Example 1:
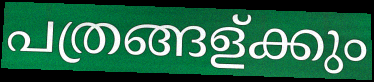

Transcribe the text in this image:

പത്രങ്ങള്ക്കും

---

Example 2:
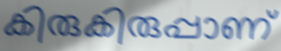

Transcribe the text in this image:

കിരുകിരുപ്പാണ്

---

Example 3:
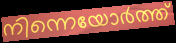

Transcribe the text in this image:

നിന്നെയോർത്ത്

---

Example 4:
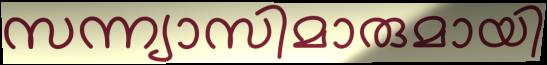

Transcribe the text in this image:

സന്ന്യാസിമാരുമായി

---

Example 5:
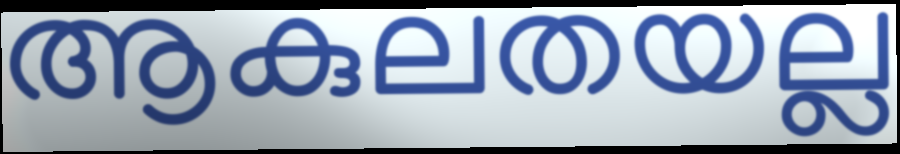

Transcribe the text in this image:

ആകുലതയല്ല